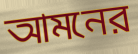
আমনের